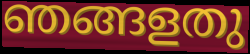
ഞങ്ങളതു